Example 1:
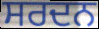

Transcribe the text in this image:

ਸਰਦਨ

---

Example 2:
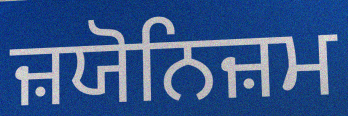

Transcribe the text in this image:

ਜ਼ਯੋਨਿਜ਼ਮ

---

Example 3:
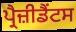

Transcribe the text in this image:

ਪ੍ਰੈਜ਼ੀਡੈਂਟਸ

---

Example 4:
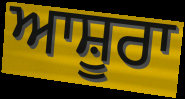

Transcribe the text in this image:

ਆਸ਼ੂਰਾ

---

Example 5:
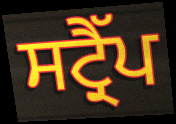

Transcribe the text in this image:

ਸਟ੍ਰੈੱਪ